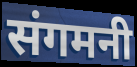
संगमनी